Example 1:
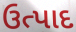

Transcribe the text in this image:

ઉત્પાદ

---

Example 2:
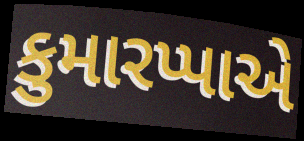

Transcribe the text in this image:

કુમારપ્પાએ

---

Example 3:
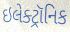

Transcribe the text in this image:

ઇલેક્ટ્રૉનિક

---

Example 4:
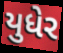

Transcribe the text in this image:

યુધેર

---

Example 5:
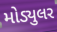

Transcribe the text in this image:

મોડ્યુલર